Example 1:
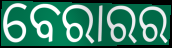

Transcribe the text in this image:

ବେରାରର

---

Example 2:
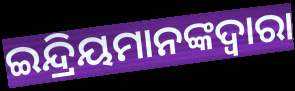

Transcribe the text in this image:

ଇନ୍ଦ୍ରିୟମାନଙ୍କଦ୍ୱାରା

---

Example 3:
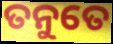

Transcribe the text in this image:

ତନୁତେ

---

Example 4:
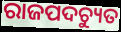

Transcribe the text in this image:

ରାଜପଦଚ୍ୟୁତ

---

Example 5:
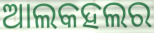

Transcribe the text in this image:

ଆଲକହଲର